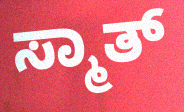
ಸ್ಮಾತ್